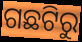
ଗଛଟିରୁ